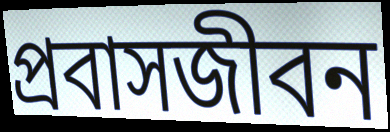
প্রবাসজীবন